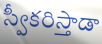
స్వీకరిస్తాడా